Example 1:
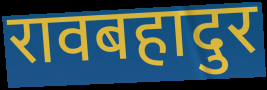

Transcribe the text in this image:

रावबहादुर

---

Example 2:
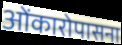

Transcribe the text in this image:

ओंकारोपासना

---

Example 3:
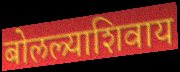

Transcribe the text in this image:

बोलल्याशिवाय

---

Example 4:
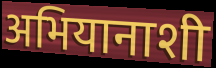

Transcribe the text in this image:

अभियानाशी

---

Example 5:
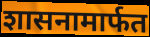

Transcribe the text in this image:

शासनामार्फत